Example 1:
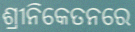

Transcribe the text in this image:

ଶ୍ରୀନିକେତନରେ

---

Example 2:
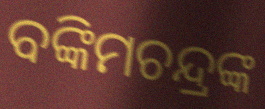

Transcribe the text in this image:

ବଙ୍କିମଚନ୍ଦ୍ରଙ୍କ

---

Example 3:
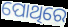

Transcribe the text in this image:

ପୋଥିରେ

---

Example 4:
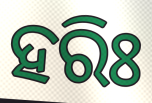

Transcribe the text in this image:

ହରିଃ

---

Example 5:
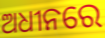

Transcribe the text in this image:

ଅଧୀନରେ